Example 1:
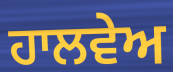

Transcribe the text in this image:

ਹਾਲਵੇਅ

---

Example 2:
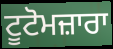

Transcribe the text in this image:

ਟੂਟੋਮਜ਼ਾਰਾ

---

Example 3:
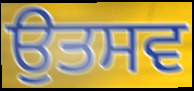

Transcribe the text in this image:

ਉਤਸਵ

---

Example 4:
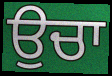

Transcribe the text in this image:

ਉਚਾ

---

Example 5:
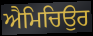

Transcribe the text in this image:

ਐਮਿਚਿਉਰ